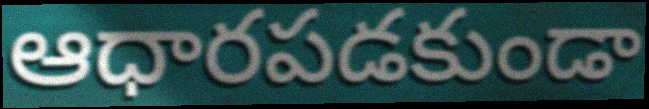
ఆధారపడకుండా